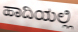
ಹಾದಿಯಲ್ಲಿ